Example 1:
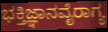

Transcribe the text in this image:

ಭಕ್ತಿಜ್ಞಾನವೈರಾಗ್ಯ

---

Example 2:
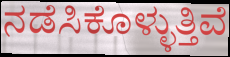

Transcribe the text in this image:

ನಡೆಸಿಕೊಳ್ಳುತ್ತಿವೆ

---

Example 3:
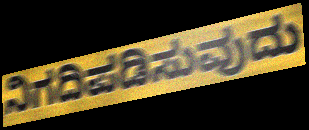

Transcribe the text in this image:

ನಿಗದಿಪಡಿಸುವುದು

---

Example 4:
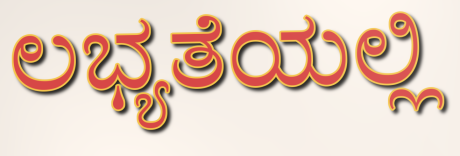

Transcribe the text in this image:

ಲಭ್ಯತೆಯಲ್ಲಿ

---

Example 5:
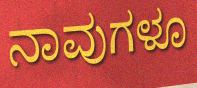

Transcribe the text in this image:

ನಾವುಗಳೂ